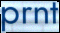
prnt